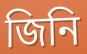
জিনি